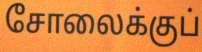
சோலைக்குப்